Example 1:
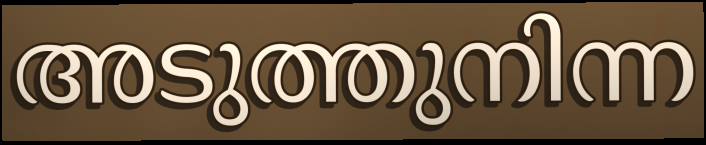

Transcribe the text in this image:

അടുത്തുനിന്ന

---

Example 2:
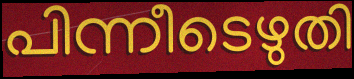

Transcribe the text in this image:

പിന്നീടെഴുതി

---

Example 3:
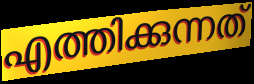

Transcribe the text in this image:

എത്തിക്കുന്നത്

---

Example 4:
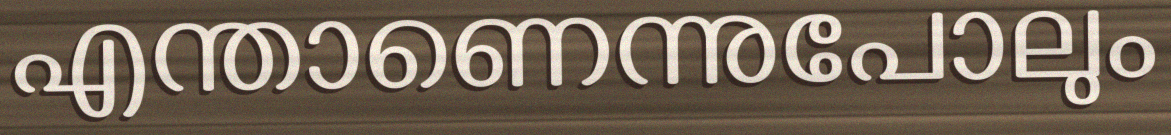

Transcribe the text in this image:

എന്താണെന്നുപോലും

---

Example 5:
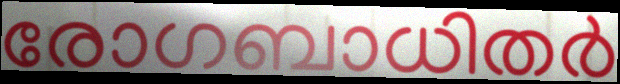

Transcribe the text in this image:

രോഗബാധിതർ